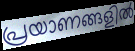
പ്രയാണങ്ങളിൽ